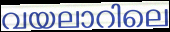
വയലാറിലെ